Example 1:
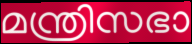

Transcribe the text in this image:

മന്ത്രിസഭാ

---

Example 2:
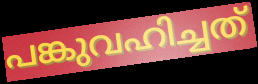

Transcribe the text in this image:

പങ്കുവഹിച്ചത്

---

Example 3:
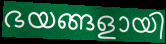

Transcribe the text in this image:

ഭയങ്ങളായി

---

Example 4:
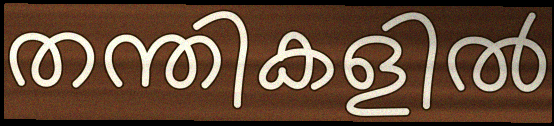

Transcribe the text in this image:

തന്തികളിൽ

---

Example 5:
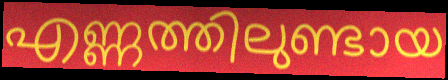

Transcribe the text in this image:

എണ്ണത്തിലുണ്ടായ